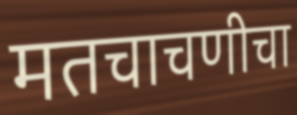
मतचाचणीचा